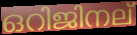
ഒറിജിനല്